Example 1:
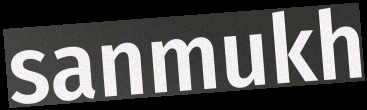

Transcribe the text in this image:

sanmukh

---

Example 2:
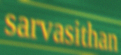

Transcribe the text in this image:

sarvasithan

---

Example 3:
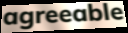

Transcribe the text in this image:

agreeable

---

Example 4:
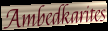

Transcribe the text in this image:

Ambedkarites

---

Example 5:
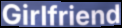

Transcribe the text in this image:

Girlfriend